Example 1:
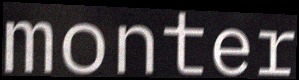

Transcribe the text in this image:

monter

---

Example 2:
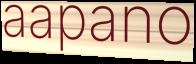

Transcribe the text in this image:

aapano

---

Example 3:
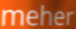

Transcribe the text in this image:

meher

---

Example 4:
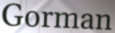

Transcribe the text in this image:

Gorman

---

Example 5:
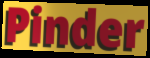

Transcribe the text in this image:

Pinder